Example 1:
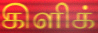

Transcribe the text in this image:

கிளிக்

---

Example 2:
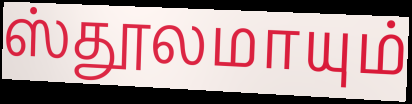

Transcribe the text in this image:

ஸ்தூலமாயும்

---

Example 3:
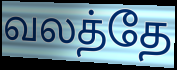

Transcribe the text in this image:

வலத்தே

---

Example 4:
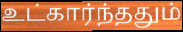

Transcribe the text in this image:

உட்கார்ந்ததும்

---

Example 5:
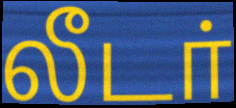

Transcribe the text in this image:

லீடர்